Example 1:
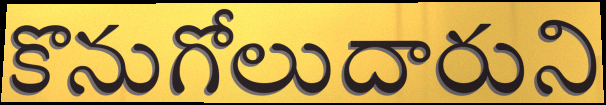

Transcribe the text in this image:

కొనుగోలుదారుని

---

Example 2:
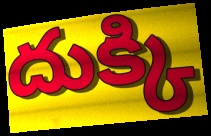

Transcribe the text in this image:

దుక్కి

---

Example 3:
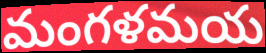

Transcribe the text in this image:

మంగళమయ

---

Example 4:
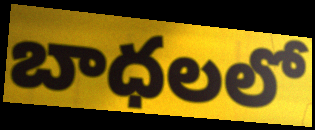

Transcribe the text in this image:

బాధలలో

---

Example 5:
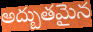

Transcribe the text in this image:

అద్బుతమైన